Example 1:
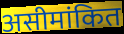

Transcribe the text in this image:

असीमांकित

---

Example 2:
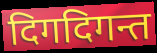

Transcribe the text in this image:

दिगदिगन्त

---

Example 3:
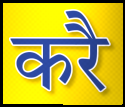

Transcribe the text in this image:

करै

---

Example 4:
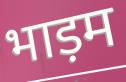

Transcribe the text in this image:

भाड़म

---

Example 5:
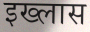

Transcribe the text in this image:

इख्लास